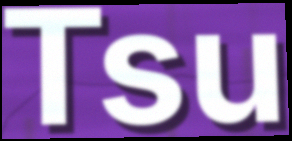
Tsu